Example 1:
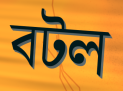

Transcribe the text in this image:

বটল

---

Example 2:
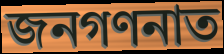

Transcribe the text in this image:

জনগণনাত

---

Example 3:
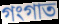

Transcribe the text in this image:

গংগাত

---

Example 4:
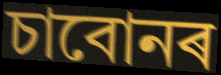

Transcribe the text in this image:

চাবোনৰ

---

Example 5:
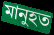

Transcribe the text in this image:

মানুহত